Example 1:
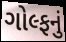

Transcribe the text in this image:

ગોલ્ફનું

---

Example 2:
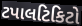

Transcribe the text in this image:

ટપાલટિકિટો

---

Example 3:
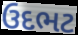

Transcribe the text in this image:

ઉદભટ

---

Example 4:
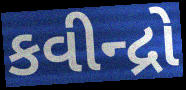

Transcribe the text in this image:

કવીન્દ્રો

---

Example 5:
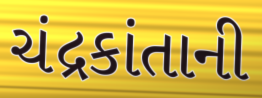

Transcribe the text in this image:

ચંદ્રકાંતાની